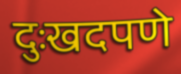
दुःखदपणे